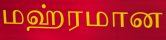
மஹ்ரமான